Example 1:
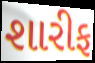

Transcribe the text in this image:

શારીફ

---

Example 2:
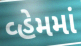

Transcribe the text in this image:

વ્હેમમાં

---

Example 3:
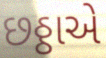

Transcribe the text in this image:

છઠ્ઠાએ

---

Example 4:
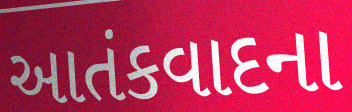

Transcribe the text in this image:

આતંકવાદના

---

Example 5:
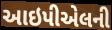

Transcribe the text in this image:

આઇપીએલની